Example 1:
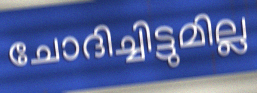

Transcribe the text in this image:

ചോദിച്ചിട്ടുമില്ല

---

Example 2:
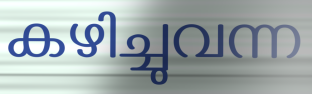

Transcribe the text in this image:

കഴിച്ചുവന്ന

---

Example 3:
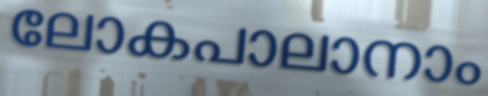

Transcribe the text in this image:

ലോകപാലാനാം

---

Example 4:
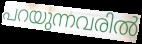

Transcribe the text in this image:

പറയുന്നവരിൽ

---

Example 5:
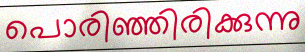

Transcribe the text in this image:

പൊരിഞ്ഞിരിക്കുന്നു